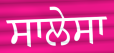
ਸਾਲੇਸਾ